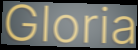
Gloria